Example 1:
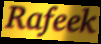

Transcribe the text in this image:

Rafeek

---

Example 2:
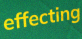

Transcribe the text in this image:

effecting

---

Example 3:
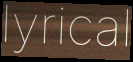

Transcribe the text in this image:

lyrical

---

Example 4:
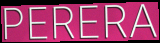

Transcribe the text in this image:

PERERA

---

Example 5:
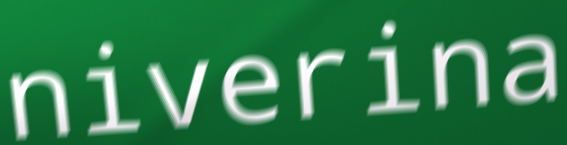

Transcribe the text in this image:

niverina